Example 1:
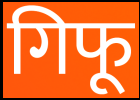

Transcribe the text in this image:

गिफू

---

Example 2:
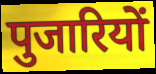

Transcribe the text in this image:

पुजारियों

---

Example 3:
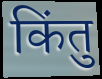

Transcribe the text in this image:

किंतु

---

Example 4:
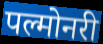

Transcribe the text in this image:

पल्मोनरी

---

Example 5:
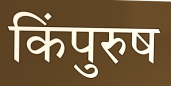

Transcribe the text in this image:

किंपुरुष